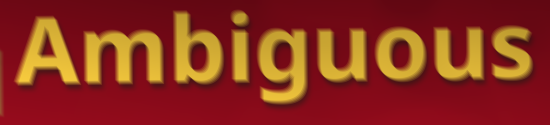
Ambiguous